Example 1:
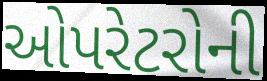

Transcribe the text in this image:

ઓપરેટરોની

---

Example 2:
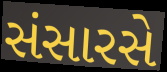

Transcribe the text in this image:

સંસારસે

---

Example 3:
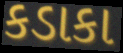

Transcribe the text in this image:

કડાકા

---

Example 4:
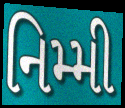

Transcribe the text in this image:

નિમ્મી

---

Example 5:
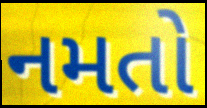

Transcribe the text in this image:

નમતો